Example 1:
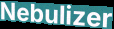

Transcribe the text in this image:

Nebulizer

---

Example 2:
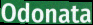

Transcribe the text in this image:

Odonata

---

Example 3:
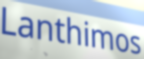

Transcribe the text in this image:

Lanthimos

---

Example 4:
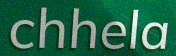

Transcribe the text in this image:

chhela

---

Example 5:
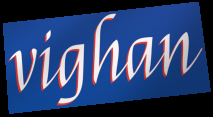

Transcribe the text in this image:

vighan